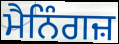
ਮੈਨਿੰਗਜ਼